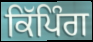
ਕਿੱਪਿੰਗ